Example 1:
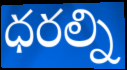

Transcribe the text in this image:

ధరల్ని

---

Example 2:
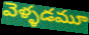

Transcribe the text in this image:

వెళ్ళడమూ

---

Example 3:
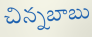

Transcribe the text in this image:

చిన్నబాబు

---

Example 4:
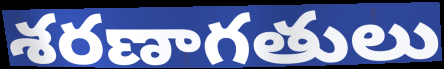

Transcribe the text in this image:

శరణాగతులు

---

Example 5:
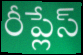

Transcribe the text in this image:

రీప్లేస్